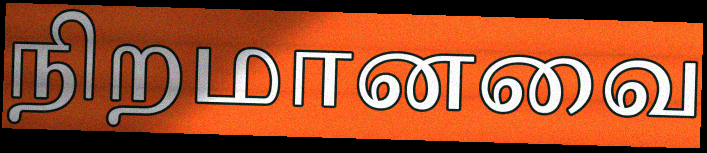
நிறமானவை